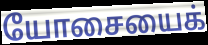
யோசையைக்